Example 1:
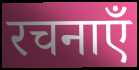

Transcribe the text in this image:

रचनाएँ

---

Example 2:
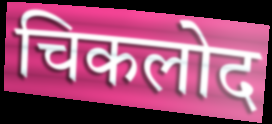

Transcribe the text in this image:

चिकलोद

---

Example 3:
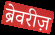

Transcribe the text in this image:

ब्रेवरीज़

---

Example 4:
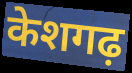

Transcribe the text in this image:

केशगढ़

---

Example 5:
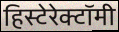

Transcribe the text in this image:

हिस्टेरेक्टॉमी